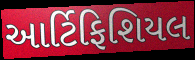
આર્ટિફિશિયલ